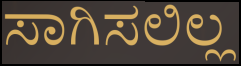
ಸಾಗಿಸಲಿಲ್ಲ